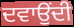
ਦਵਾਉਂਦੀ